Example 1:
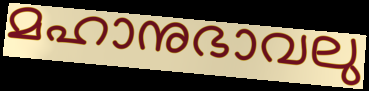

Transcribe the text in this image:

മഹാനുഭാവലു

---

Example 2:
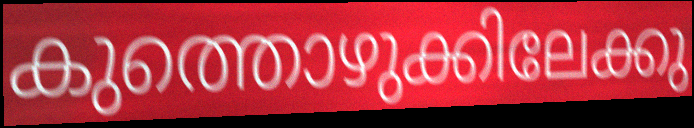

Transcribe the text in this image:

കുത്തൊഴുക്കിലേക്കു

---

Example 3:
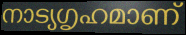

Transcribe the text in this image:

നാട്യഗൃഹമാണ്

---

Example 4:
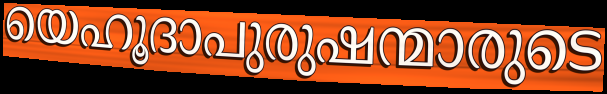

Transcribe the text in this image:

യെഹൂദാപുരുഷന്മാരുടെ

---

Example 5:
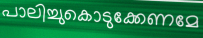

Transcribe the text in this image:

പാലിച്ചുകൊടുക്കേണമേ